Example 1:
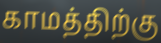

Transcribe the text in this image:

காமத்திற்கு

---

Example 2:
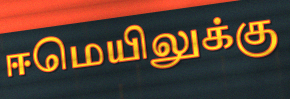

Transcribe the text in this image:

ஈமெயிலுக்கு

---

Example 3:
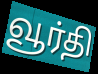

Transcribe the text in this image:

வூர்தி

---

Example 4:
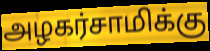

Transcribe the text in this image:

அழகர்சாமிக்கு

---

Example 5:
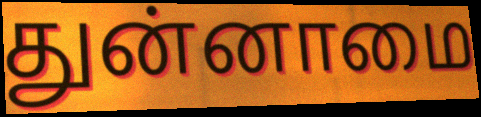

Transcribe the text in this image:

துன்னாமை